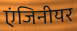
एंजिनीयर